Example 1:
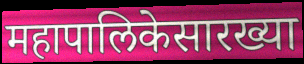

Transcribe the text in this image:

महापालिकेसारख्या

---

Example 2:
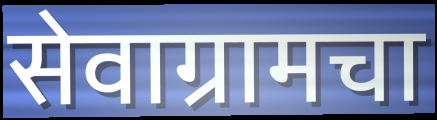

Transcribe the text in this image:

सेवाग्रामचा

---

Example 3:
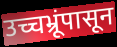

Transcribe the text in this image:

उच्चभ्रूंपासून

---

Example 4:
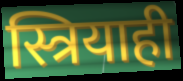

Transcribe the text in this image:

स्त्रियाही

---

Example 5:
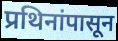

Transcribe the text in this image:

प्रथिनांपासून